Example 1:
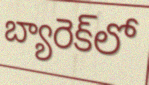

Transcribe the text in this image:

బ్యారెక్‌లో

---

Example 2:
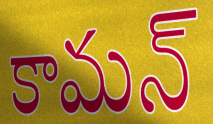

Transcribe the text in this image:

కామన్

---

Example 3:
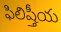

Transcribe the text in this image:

ఫిలిష్తీయ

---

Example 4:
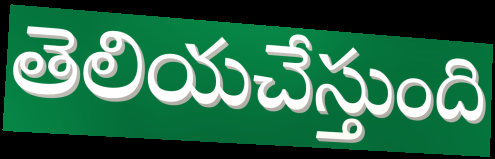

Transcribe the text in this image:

తెలియచేస్తుంది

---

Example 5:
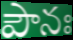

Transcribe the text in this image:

పౌనః